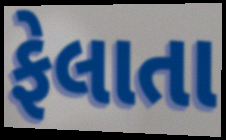
ફેલાતા